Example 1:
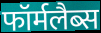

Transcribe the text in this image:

फॉर्मलैब्स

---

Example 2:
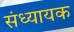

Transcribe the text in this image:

संध्यायक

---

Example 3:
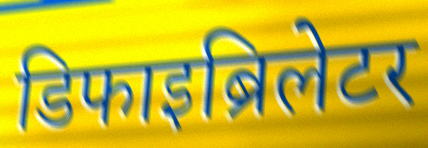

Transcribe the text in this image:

डिफाइब्रिलेटर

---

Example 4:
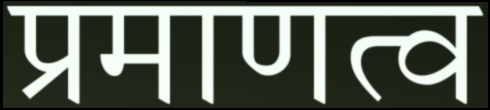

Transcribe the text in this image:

प्रमाणत्व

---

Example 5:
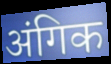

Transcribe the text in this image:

अंगिक